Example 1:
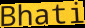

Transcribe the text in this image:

Bhati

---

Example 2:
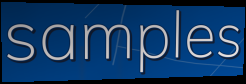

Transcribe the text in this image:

samples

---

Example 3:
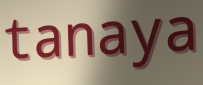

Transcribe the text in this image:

tanaya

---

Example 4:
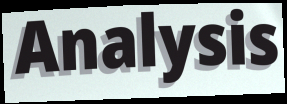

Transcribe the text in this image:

Analysis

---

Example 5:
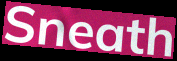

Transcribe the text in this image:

Sneath